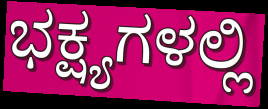
ಭಕ್ಷ್ಯಗಳಲ್ಲಿ